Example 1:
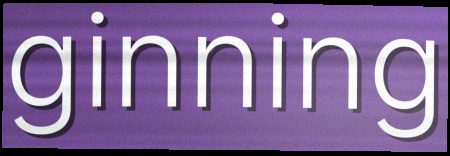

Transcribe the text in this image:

ginning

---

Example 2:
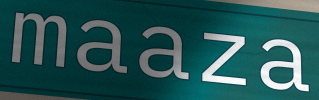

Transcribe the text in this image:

maaza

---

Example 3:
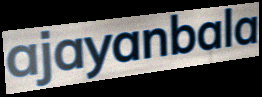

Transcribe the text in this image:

ajayanbala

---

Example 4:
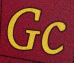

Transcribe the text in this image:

Gc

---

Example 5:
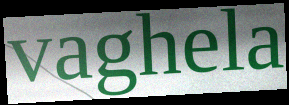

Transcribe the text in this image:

vaghela